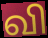
வி